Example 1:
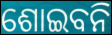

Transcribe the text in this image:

ଶୋଇବନି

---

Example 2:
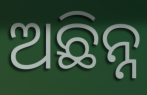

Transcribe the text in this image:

ଅଛିନ୍ନ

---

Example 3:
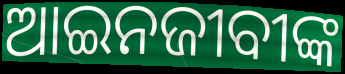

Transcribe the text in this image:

ଆଇନଜୀବୀଙ୍କ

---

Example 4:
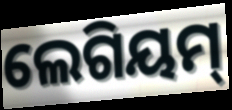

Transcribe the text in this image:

ଲେଗିୟମ୍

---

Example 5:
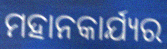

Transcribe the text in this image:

ମହାନକାର୍ଯ୍ୟର